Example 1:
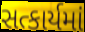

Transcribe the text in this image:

સત્કાર્યમાં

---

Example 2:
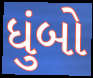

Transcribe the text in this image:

ધુંબો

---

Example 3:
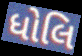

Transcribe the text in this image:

ધોલિ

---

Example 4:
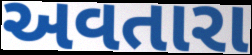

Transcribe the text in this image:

અવતારા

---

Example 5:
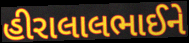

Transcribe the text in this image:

હીરાલાલભાઈને